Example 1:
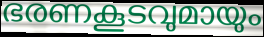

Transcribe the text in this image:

ഭരണകൂടവുമായും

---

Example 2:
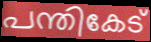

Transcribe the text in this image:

പന്തികേട്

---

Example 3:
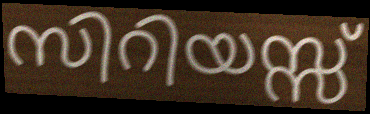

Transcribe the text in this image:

സിറിയസ്സ്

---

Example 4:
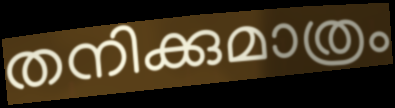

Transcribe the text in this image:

തനിക്കുമാത്രം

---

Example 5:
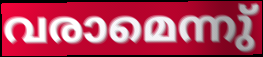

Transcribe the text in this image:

വരാമെന്നു്